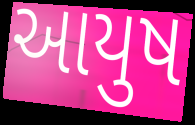
આયુષ